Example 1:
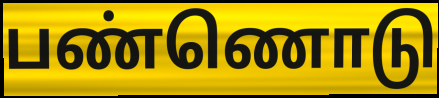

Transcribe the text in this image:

பண்ணொடு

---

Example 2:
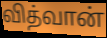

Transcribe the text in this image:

வித்வான்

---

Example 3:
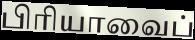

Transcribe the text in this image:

பிரியாவைப்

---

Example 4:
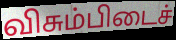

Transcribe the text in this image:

விசும்பிடைச்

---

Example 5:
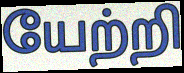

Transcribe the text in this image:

யேற்றி